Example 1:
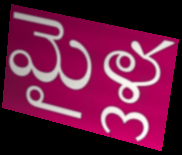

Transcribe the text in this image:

మైళ్ల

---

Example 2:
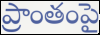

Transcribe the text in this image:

ప్రాంతంపై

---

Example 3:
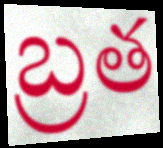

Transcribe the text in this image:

బ్రత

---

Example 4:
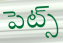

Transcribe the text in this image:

పెట్స్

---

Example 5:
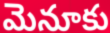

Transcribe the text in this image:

మెనూకు